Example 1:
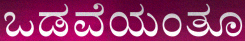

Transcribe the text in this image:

ಒಡವೆಯಂತೂ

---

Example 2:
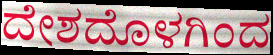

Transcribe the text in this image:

ದೇಶದೊಳಗಿಂದ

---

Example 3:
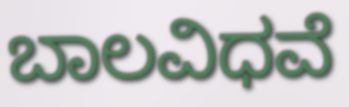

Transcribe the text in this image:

ಬಾಲವಿಧವೆ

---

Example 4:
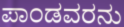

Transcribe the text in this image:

ಪಾಂಡವರನು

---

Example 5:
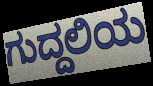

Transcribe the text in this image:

ಗುದ್ದಲಿಯ